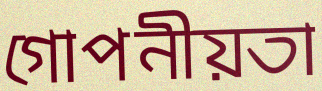
গোপনীয়তা